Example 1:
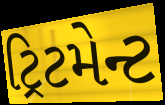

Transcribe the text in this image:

ટ્રિટમેન્ટ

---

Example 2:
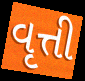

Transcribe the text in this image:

વૃત્તી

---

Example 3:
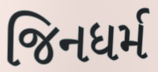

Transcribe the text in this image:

જિનધર્મ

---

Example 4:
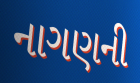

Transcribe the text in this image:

નાગણની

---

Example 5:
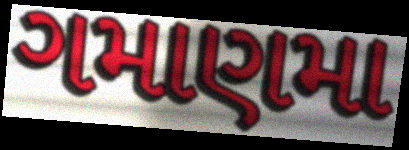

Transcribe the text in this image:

ગમાણમા